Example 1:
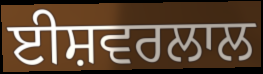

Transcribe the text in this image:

ਈਸ਼ਵਰਲਾਲ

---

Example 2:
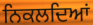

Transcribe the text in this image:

ਨਿਕਲਦਿਆਂ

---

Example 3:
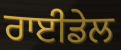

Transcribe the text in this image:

ਰਾਈਡੇਲ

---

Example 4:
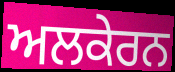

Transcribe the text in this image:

ਅਲਕੇਰਨ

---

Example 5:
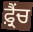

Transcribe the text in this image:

ਫ਼੍ਰੈਂਚ